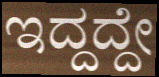
ಇದ್ದದ್ದೇ